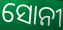
ସୋନୀ